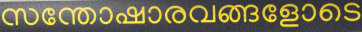
സന്തോഷാരവങ്ങളോടെ